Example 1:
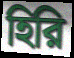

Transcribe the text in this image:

হিরি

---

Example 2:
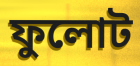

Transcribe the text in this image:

ফুলোট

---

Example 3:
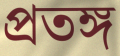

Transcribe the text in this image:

প্রতঙ্গ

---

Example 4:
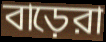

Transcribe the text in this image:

বাড়েরা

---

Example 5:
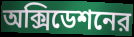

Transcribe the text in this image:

অক্সিডেশনের